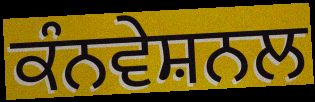
ਕੰਨਵੇਸ਼ਨਲ